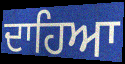
ਦਾਹਿਆ